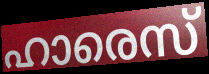
ഹാരെസ്